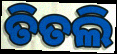
ତିତଲି